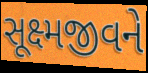
સૂક્ષ્મજીવને